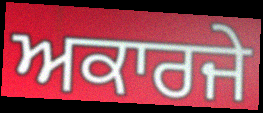
ਅਕਾਰਜੇ